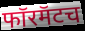
फॉरमॅटच